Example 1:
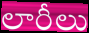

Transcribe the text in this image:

లారీలు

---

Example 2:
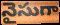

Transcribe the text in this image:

నైసుగా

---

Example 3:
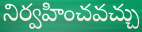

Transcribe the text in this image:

నిర్వహించవచ్చు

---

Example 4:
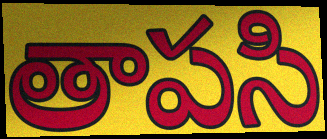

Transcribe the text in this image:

తాపసి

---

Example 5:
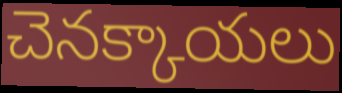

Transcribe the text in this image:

చెనక్కాయలు